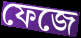
ফেজে